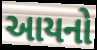
આયનો